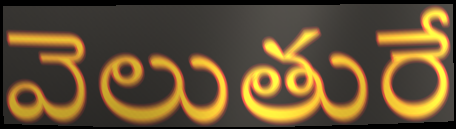
వెలుతురే